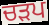
ਚੜਪ